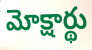
మోక్షార్థు